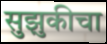
सुझुकीचा